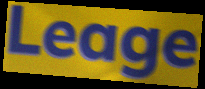
Leage